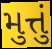
મુત્તું